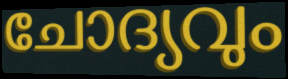
ചോദ്യവും